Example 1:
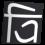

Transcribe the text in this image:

ত্রি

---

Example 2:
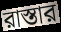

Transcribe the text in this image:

রাস্তার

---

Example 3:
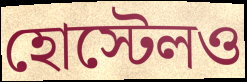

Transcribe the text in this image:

হোস্টেলও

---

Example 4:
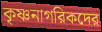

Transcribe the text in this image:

কৃষ্ণনাগরিকদের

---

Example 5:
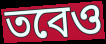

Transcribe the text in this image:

তবেও